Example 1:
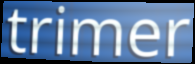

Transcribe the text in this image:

trimer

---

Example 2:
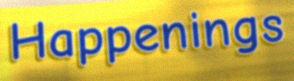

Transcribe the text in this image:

Happenings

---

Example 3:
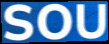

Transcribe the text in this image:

SOU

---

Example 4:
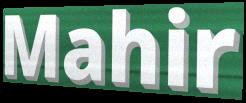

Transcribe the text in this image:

Mahir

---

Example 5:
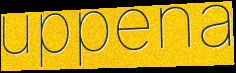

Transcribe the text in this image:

uppena